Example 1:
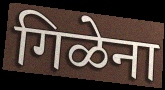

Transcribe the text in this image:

गिळेना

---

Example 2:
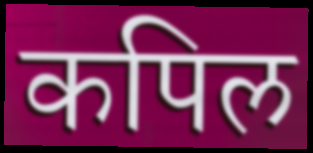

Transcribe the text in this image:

कपिल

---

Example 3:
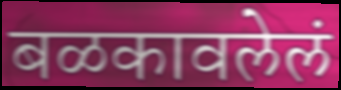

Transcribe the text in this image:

बळकावलेलं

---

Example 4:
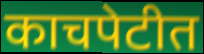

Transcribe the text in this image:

काचपेटीत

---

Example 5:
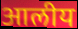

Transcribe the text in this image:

आलीय